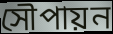
সৌপায়ন